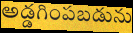
అడ్డగింపబడును